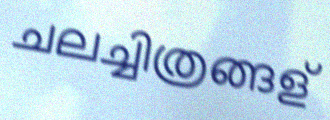
ചലച്ചിത്രങ്ങള്